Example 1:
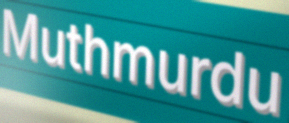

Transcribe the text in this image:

Muthmurdu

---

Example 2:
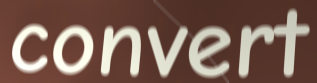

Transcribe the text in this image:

convert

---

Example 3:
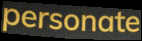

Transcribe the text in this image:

personate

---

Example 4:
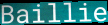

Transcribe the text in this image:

Baillie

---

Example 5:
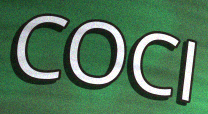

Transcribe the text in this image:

COCI